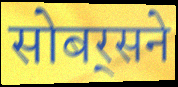
सोबर्सने